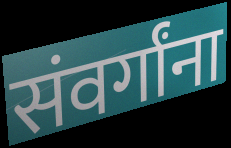
संवर्गांना